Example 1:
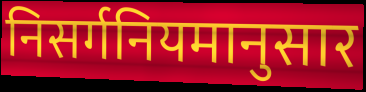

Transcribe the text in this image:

निसर्गनियमानुसार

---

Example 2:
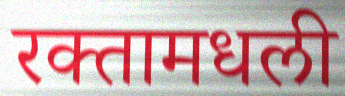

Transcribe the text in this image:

रक्तामधली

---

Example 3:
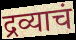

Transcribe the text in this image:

द्रव्याचं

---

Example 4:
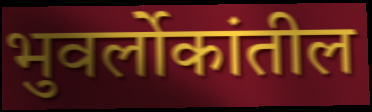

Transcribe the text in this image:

भुवर्लोकांतील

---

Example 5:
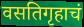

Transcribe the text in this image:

वसतिगृहाचं